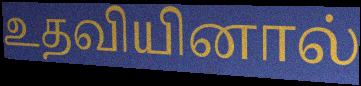
உதவியினால்